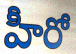
హీరో